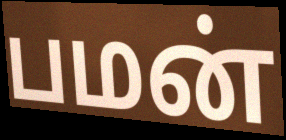
பமன்